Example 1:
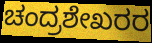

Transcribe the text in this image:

ಚಂದ್ರಶೇಖರರ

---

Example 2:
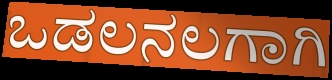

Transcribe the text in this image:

ಒಡಲನಲಗಾಗಿ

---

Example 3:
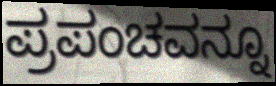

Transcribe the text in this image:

ಪ್ರಪಂಚವನ್ನೂ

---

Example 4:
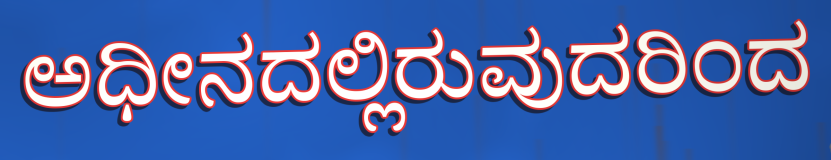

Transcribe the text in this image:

ಅಧೀನದಲ್ಲಿರುವುದರಿಂದ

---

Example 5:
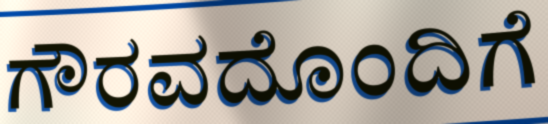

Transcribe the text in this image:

ಗೌರವದೊಂದಿಗೆ